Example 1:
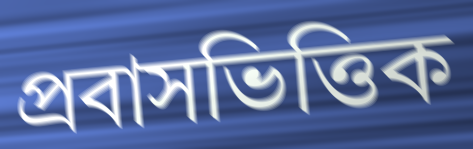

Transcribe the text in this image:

প্রবাসভিত্তিক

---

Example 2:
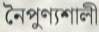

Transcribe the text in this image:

নৈপুণ্যশালী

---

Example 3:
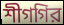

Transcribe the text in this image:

শীগগির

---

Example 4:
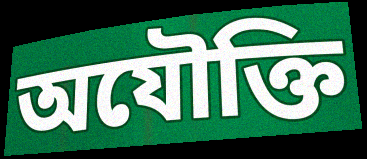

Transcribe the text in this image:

অযৌক্তি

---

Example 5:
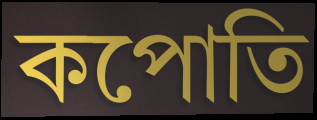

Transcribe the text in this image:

কপোতি